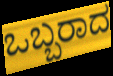
ಒಬ್ಬರಾದ